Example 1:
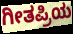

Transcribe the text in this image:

ಗೀತಪ್ರಿಯ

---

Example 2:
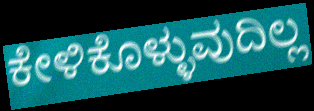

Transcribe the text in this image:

ಕೇಳಿಕೊಳ್ಳುವುದಿಲ್ಲ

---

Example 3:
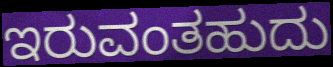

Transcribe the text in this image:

ಇರುವಂತಹುದು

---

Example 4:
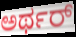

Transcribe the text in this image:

ಅರ್ಥರ್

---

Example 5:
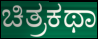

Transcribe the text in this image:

ಚಿತ್ರಕಥಾ